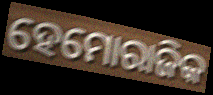
ହେମୋରାଜିକ